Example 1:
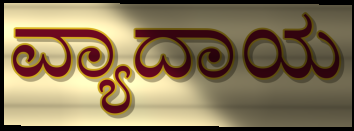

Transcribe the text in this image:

ವ್ಯಾದಾಯ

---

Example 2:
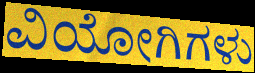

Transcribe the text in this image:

ವಿಯೋಗಿಗಳು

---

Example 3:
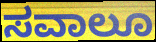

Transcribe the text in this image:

ಸವಾಲೂ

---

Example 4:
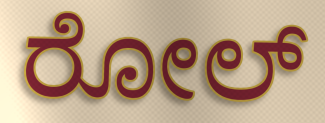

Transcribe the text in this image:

ರೋಲ್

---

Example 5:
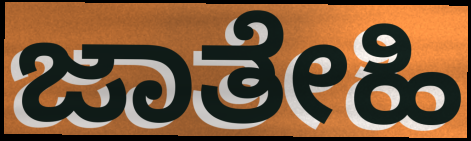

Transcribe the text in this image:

ಜಾತೇಹಿ